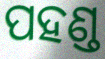
ପହଣ୍ଡ